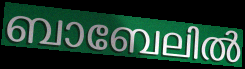
ബാബേലിൽ